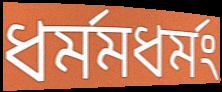
ধর্মমধর্মং